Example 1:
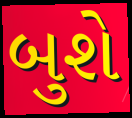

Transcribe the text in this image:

બુશે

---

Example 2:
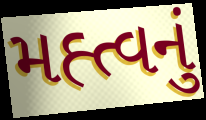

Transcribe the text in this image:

મહ્ત્વનું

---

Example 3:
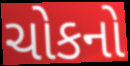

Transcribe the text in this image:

ચોકનો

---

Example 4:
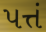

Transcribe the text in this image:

પત્તં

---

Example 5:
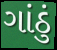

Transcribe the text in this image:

ગાંઠું